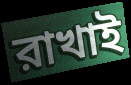
রাখাই